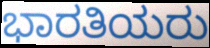
ಭಾರತಿಯರು